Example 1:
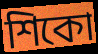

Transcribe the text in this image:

শিকো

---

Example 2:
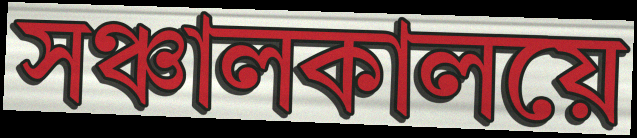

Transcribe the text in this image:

সঞ্চালকালয়ে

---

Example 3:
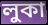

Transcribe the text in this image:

লুকা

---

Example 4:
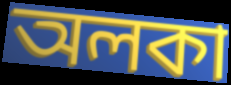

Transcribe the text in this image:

অলকা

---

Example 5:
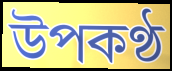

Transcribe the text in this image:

উপকণ্ঠ